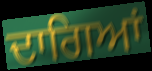
ਦਾਗਿਆਂ